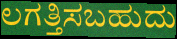
ಲಗತ್ತಿಸಬಹುದು